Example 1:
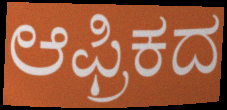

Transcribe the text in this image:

ಆಫ್ರಿಕದ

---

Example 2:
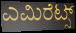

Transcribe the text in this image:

ಎಮಿರೆಟ್ಸ್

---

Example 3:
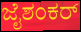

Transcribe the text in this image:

ಜೈಶಂಕರ್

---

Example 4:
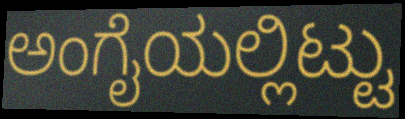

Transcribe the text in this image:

ಅಂಗೈಯಲ್ಲಿಟ್ಟು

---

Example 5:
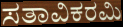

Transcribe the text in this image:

ಸತಾವಿಕರಮಿ